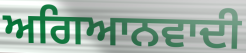
ਅਗਿਆਨਵਾਦੀ